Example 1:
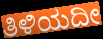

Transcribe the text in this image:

ತಿಳಿಯದೀ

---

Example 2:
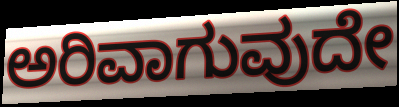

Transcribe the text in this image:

ಅರಿವಾಗುವುದೇ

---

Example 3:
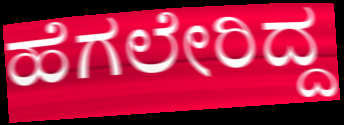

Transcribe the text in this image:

ಹೆಗಲೇರಿದ್ದ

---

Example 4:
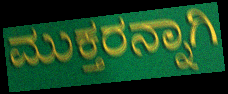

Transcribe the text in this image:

ಮುಕ್ತರನ್ನಾಗಿ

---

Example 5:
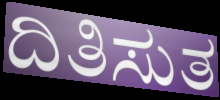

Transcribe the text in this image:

ದಿತಿಸುತ